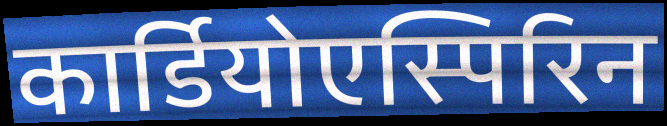
कार्डियोएस्पिरिन